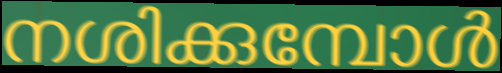
നശിക്കുമ്പോൾ